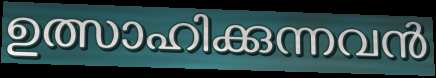
ഉത്സാഹിക്കുന്നവൻ